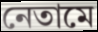
নেতামে